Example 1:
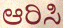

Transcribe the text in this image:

ಆರಿಸಿ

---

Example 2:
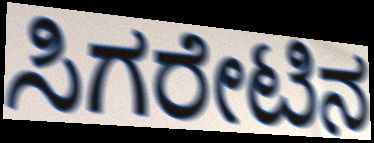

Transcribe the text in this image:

ಸಿಗರೇಟಿನ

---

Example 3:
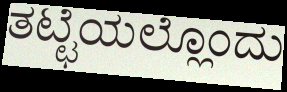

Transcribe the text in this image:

ತಟ್ಟೆಯಲ್ಲೊಂದು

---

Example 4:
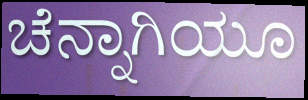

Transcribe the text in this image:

ಚೆನ್ನಾಗಿಯೂ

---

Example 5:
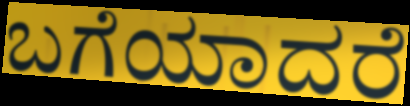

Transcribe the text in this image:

ಬಗೆಯಾದರೆ